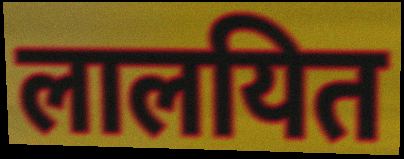
लालयित